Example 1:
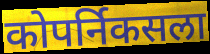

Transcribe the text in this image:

कोपर्निकसला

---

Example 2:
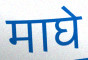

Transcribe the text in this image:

माघे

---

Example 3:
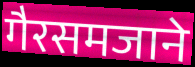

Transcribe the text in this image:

गैरसमजाने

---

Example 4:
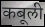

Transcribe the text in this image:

कबूली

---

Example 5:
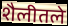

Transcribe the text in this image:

शैलीतले